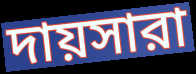
দায়সারা